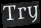
Try